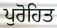
ਪੁਰੋਹਿਤ